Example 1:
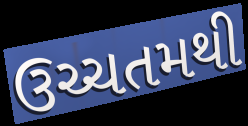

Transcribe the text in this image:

ઉચ્ચતમથી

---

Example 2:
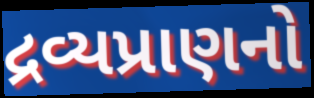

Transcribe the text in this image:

દ્રવ્યપ્રાણનો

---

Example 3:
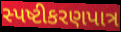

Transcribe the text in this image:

સ્પષ્ટીકરણપાત્ર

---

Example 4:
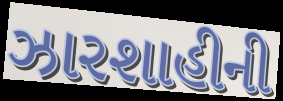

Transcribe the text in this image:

ઝારશાહીની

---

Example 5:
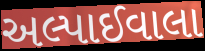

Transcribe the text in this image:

અલ્પાઈવાલા